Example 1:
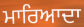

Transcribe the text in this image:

ਮਾਰਿਆਦਾ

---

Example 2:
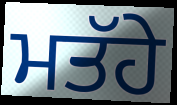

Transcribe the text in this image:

ਮਤੱਹੇ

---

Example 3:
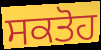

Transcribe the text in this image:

ਸਕਤੋਹ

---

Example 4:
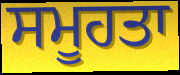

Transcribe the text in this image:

ਸਮੂਹਤਾ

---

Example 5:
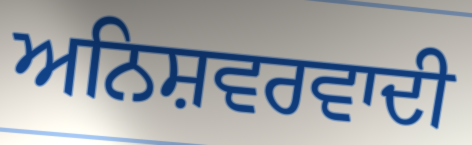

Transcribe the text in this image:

ਅਨਿਸ਼ਵਰਵਾਦੀ